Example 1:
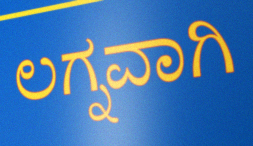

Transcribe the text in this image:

ಲಗ್ನವಾಗಿ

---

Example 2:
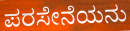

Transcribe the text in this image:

ಪರಸೇನೆಯನು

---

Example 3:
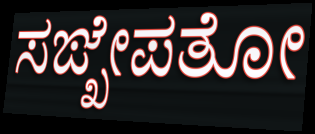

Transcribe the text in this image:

ಸಙ್ಖೇಪತೋ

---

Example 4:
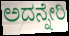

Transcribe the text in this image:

ಅದನ್ನೇರಿ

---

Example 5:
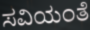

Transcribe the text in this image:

ಸವಿಯಂತೆ